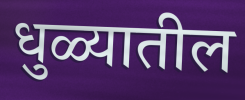
धुळ्यातील